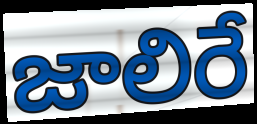
జాలిరే